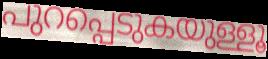
പുറപ്പെടുകയുള്ളൂ